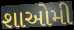
શાઓમી